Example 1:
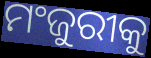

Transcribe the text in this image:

ମଂଜୁରୀକୁ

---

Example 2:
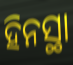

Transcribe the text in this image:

ହିନସ୍ଥା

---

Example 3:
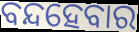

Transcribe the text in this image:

ବନ୍ଦହେବାର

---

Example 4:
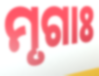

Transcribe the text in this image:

ମୃଗାଃ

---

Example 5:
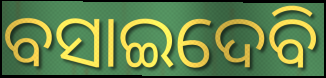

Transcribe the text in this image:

ବସାଇଦେବି